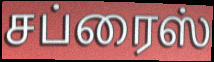
சப்ரைஸ்